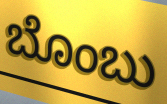
ಬೊಂಬು